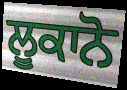
ਲੂਕਾਨੋ